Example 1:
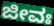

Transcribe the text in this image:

ಜೀವಃ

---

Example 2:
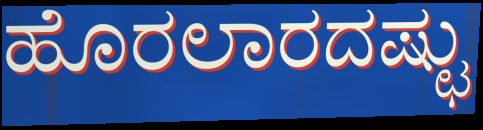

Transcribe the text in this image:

ಹೊರಲಾರದಷ್ಟು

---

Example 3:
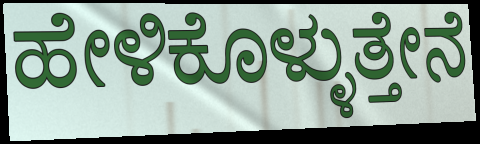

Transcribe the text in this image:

ಹೇಳಿಕೊಳ್ಳುತ್ತೇನೆ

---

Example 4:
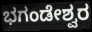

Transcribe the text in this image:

ಭಗಂಡೇಶ್ವರ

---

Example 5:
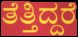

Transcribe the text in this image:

ತೆತ್ತಿದ್ದರೆ